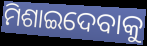
ମିଶାଇଦେବାକୁ